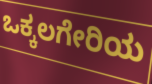
ಒಕ್ಕಲಗೇರಿಯ